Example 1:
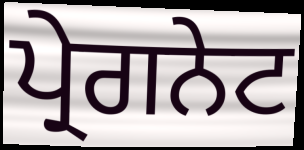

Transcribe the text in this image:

ਪ੍ਰੇਗਨੇਟ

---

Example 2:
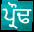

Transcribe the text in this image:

ਪ੍ਰੌਢ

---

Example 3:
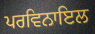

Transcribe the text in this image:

ਪਰਵਿਨਾਇਲ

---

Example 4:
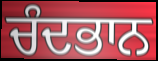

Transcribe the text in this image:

ਚੰਦਭਾਨ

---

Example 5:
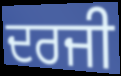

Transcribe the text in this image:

ਦਰਜੀ